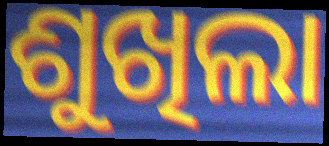
ଶୁଖିଲା